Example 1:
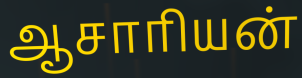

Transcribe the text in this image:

ஆசாரியன்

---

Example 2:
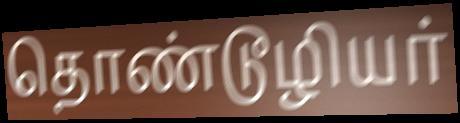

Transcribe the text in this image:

தொண்டூழியர்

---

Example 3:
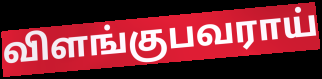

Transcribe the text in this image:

விளங்குபவராய்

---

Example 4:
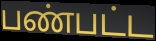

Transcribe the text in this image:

பண்பட்ட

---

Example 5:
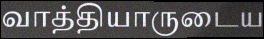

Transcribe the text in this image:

வாத்தியாருடைய